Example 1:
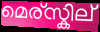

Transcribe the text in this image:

മെര്സ്കില്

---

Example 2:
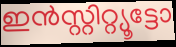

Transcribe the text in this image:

ഇൻസ്റ്റിറ്റ്യൂട്ടോ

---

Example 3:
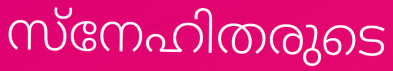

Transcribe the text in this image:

സ്നേഹിതരുടെ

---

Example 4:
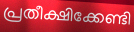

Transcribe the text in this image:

പ്രതീക്ഷിക്കേണ്ടി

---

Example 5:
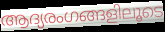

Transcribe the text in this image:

ആദ്യരംഗങ്ങളിലൂടെ